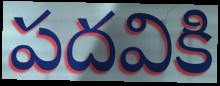
పదవికి